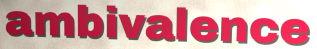
ambivalence